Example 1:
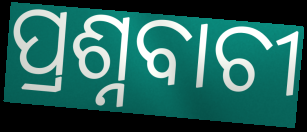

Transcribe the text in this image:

ପ୍ରଶ୍ନବାଚୀ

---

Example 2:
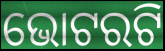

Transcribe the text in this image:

ଭୋଟରଟି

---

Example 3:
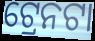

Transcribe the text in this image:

ଟ୍ରେନଟା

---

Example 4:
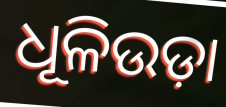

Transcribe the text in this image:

ଧୂଳିଉଡ଼ା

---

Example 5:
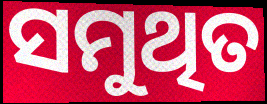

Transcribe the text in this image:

ସମୁଥିତ